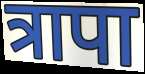
त्रापा